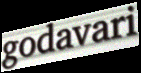
godavari